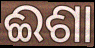
ଈଶା